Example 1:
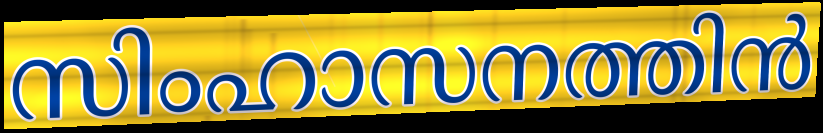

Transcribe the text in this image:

സിംഹാസനത്തിൻ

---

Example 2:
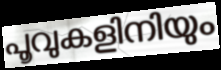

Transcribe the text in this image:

പൂവുകളിനിയും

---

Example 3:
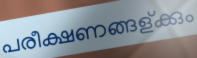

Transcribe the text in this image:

പരീക്ഷണങ്ങള്ക്കും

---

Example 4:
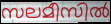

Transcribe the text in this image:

സലമീസിൽ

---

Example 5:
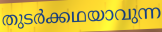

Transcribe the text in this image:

തുടർക്കഥയാവുന്ന